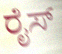
ರೈಸ್